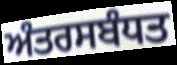
ਅੰਤਰਸਬੰਧਤ